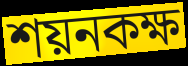
শয়নকক্ষ